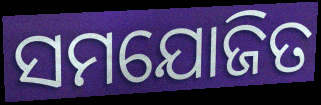
ସମଯୋଜିତ